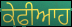
ਕੇਫੀਆਹ